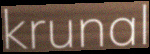
krunal